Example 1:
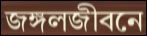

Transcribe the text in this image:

জঙ্গলজীবনে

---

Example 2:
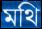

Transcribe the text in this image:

মথি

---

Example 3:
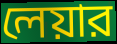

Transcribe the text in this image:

লেয়ার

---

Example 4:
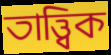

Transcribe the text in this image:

তাত্ত্বিক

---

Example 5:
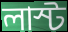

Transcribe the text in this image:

লাস্ট